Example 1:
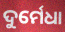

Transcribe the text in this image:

ଦୁର୍ମେଧା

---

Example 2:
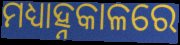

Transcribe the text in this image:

ମଧ୍ୟାହ୍ନକାଳରେ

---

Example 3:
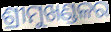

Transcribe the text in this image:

ଶ୍ରୀମୁଖଣ୍ଡଳର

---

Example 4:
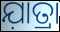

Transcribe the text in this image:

ଯ଼ାତ୍ରା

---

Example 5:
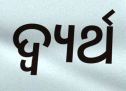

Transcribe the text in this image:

ଦ୍ୱ୍ୟର୍ଥ